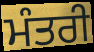
ਮੰਤਰੀ